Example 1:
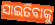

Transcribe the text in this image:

ସାଇତିବାକୁ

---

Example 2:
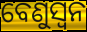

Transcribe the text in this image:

ବେଣୁସ୍ଵନ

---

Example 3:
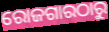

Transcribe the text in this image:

ରୋଜଗାରଠାରୁ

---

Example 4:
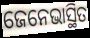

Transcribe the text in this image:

ଜେନେଭାସ୍ଥିତ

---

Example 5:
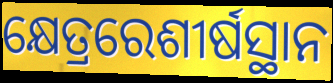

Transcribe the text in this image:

କ୍ଷେତ୍ରରେଶୀର୍ଷସ୍ଥାନ